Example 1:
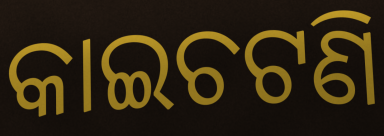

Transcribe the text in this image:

କାଇଚଟଣି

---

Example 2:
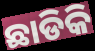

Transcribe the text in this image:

ଛାଡିକି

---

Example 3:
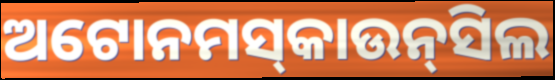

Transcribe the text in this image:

ଅଟୋନମସ୍‌କାଉନ୍‌ସିଲ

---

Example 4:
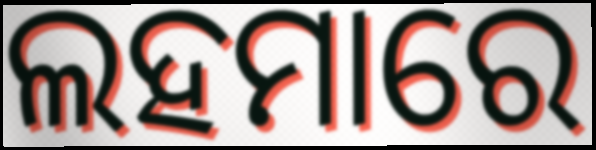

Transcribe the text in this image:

ଲହମାରେ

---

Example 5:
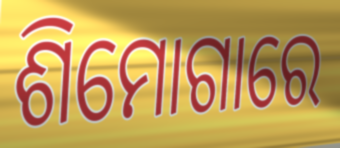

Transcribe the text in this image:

ଶିମୋଗାରେ